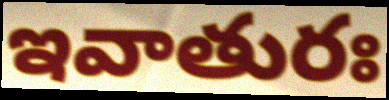
ఇవాతురః